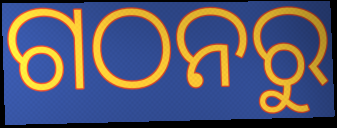
ଗଠନରୁ